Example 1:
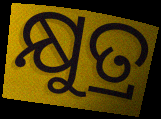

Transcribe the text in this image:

କ୍ଷୁତ୍ର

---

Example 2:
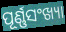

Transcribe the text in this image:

ପୂର୍ଣ୍ଣସଂଖ୍ୟା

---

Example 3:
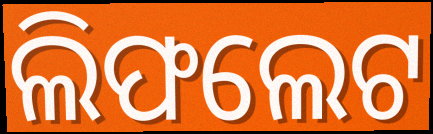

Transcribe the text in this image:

ଲିଫଲେଟ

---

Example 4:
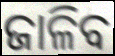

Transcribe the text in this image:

ଜାଳିବ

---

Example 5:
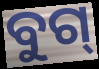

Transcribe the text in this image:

ବୁଗ୍